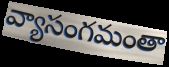
వ్యాసంగమంతా